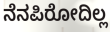
ನೆನಪಿರೋದಿಲ್ಲ